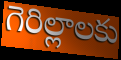
గెరిల్లాలకు